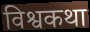
विश्वकथा